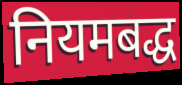
नियमबद्ध